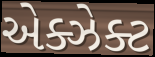
એક્ઝેક્ટ